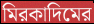
মিরকাদিমের